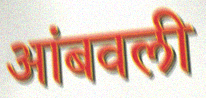
आंबवली